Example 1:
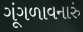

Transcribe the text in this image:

ગૂંગળાવનારું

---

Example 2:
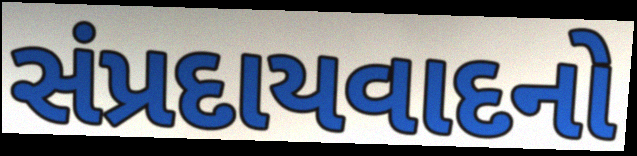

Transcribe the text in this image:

સંપ્રદાયવાદનો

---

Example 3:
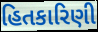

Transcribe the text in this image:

હિતકારિણી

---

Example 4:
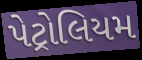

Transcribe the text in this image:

પેટ્રોલિયમ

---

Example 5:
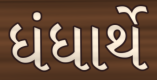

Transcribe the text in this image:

ધંધાર્થે